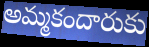
అమ్మకందారుకు